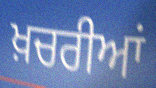
ਖ਼ਚਰੀਆਂ